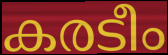
കരടീം